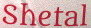
Shetal